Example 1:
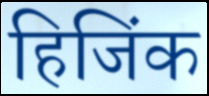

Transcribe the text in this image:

हिजिंक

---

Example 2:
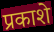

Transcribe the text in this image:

प्रकाशे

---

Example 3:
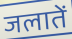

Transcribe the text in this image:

जलातें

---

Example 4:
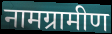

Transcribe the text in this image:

नामग्रामीण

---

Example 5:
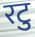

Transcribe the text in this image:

रटु